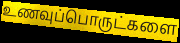
உணவுப்பொருட்களை